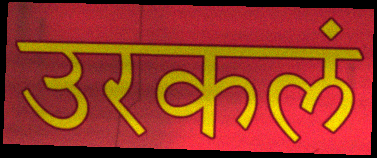
उरकलं